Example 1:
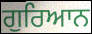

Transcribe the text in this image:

ਗੁਰਿਆਨ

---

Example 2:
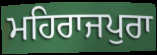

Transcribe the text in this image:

ਮਹਿਰਾਜਪੁਰਾ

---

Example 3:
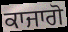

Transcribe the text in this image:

ਕਾਜਾਗੋ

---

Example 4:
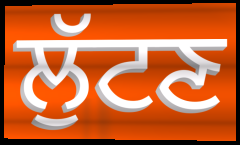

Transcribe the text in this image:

ਲੁੱਟਣ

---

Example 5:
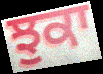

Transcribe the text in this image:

ਝੁਕਾ